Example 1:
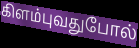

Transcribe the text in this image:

கிளம்புவதுபோல்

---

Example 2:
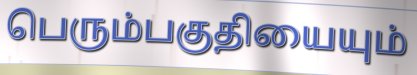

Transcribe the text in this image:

பெரும்பகுதியையும்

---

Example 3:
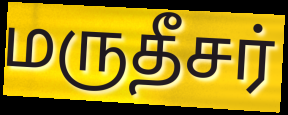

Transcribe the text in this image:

மருதீசர்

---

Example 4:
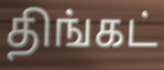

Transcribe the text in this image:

திங்கட்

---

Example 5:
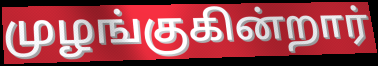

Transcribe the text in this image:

முழங்குகின்றார்